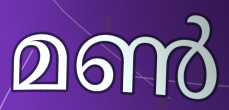
മൺ